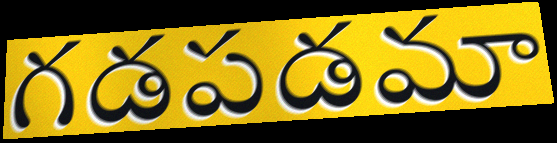
గడపడమా